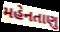
મહેનતાણુ